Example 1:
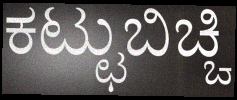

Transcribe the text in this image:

ಕಟ್ಟುಬಿಚ್ಚಿ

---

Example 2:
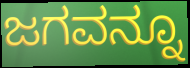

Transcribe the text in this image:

ಜಗವನ್ನೂ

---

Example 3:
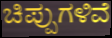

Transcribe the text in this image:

ಚಿಪ್ಪುಗಳಿವೆ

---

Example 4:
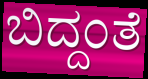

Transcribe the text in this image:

ಬಿದ್ದಂತೆ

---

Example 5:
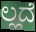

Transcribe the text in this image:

ಲ್ಲದೆ